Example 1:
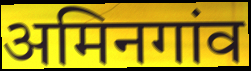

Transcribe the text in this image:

अमिनगांव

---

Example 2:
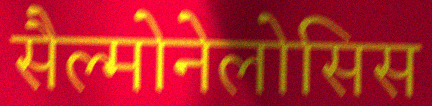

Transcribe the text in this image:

सैल्मोनेलोसिस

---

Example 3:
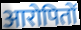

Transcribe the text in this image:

आरोपितों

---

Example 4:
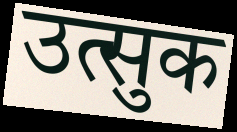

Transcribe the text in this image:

उत्‍सुक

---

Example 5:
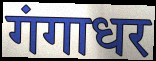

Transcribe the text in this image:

गंगाधर